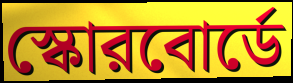
স্কোরবোর্ডে